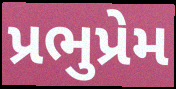
પ્રભુપ્રેમ